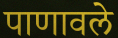
पाणावले